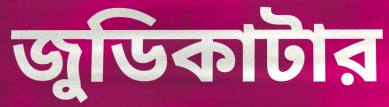
জুডিকাটার